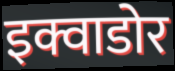
इक्वाडोर